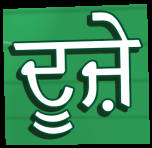
ਦੂਜ਼ੇ